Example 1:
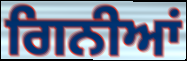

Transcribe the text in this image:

ਗਿਨੀਆਂ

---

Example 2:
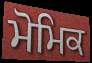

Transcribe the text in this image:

ਮੋਮਿਕ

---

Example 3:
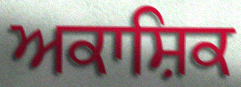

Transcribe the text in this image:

ਅਕਾਸ਼ਿਕ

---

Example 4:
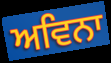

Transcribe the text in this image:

ਅਵਿਨਾ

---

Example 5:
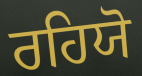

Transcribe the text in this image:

ਰਹਿਯੋ